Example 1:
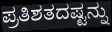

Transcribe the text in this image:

ಪ್ರತಿಶತದಷ್ಟನ್ನು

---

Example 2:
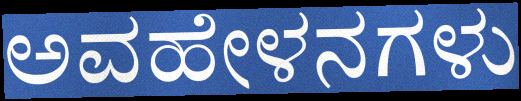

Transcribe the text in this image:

ಅವಹೇಳನಗಳು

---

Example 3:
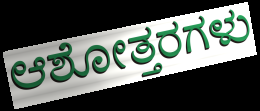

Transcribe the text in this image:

ಆಶೋತ್ತರಗಳು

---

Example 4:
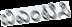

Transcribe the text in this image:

ಬಿಎಂಟಿಸಿ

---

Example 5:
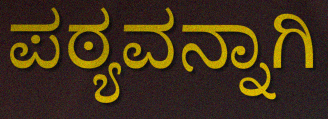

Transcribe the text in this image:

ಪಠ್ಯವನ್ನಾಗಿ